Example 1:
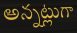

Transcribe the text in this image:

అన్నట్లుగా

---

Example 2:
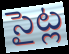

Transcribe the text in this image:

సైట్ల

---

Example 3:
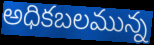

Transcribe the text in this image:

అధికబలమున్న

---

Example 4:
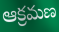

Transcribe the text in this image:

ఆక్రమణ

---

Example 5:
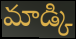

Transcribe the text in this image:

మాడ్కి